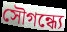
সৌগন্ধ্যে